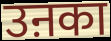
उऩका